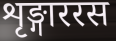
शृङ्गाररस